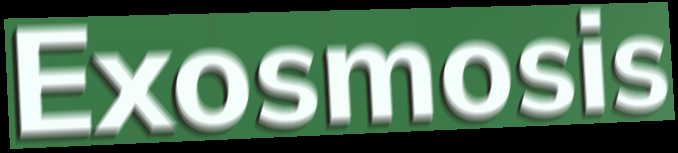
Exosmosis